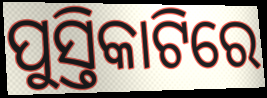
ପୁସ୍ତିକାଟିରେ